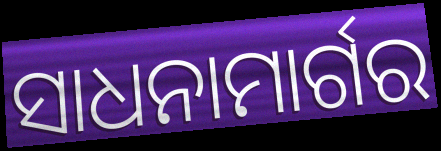
ସାଧନାମାର୍ଗର